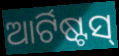
ଆର୍ଟିଷ୍ଟସ୍